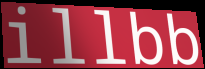
illbb